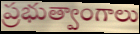
ప్రభుత్వాంగాలు